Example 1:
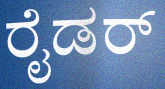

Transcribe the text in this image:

ರೈಡರ್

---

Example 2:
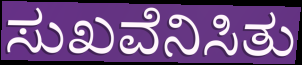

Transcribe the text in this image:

ಸುಖವೆನಿಸಿತು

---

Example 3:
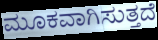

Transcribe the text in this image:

ಮೂಕವಾಗಿಸುತ್ತದೆ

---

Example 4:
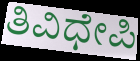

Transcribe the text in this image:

ತಿವಿಧೇಪಿ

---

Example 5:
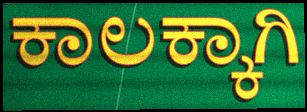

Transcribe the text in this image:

ಕಾಲಕ್ಕಾಗಿ